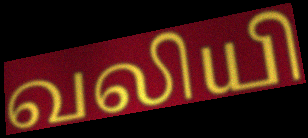
வலியி